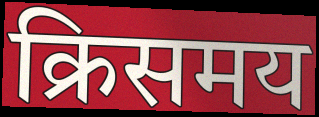
क्रिसमय